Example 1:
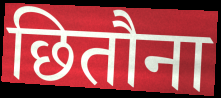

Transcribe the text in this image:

छितौना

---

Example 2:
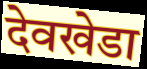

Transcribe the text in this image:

देवखेडा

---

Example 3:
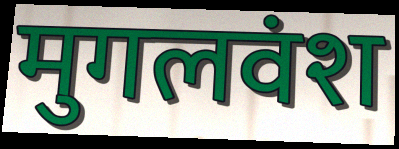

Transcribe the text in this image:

मुगलवंश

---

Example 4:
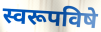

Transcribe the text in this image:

स्वरूपविषे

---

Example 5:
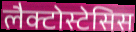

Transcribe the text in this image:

लैक्टोस्टेसिस